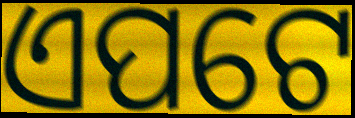
ଏପଟେ